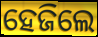
ହେଜିଲେ